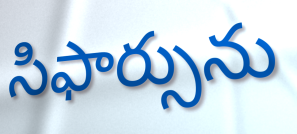
సిఫార్సును